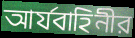
আর্যবাহিনীর